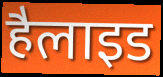
हैलाइड